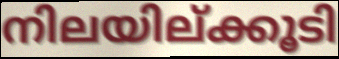
നിലയില്ക്കൂടി